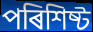
পৰিশিষ্ট